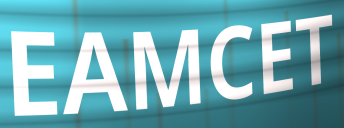
EAMCET